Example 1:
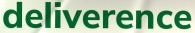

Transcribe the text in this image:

deliverence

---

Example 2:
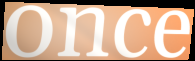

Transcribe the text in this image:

once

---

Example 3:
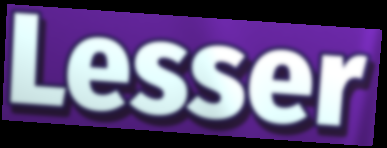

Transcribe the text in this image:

Lesser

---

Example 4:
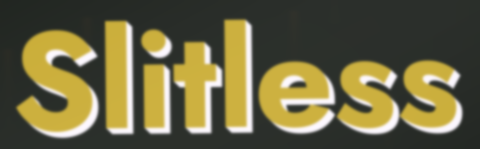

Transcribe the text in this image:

Slitless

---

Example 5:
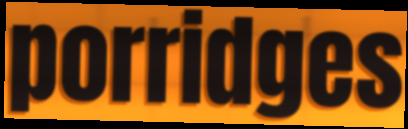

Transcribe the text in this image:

porridges